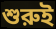
শুরুই